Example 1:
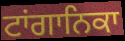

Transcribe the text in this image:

ਟਾਂਗਾਨਿਕਾ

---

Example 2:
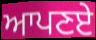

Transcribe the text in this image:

ਆਪਣਏ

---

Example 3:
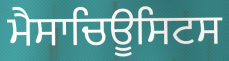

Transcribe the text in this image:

ਮੈਸਾਚਿਊਸਿਟਸ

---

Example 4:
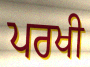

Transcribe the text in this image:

ਪਰਖੀ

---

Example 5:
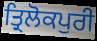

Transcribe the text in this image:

ਤ੍ਰਿਲੋਕਪੁਰੀ